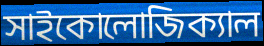
সাইকোলোজিক্যাল